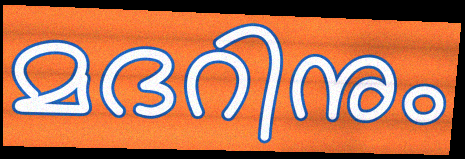
മദറിനും